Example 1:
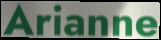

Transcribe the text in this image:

Arianne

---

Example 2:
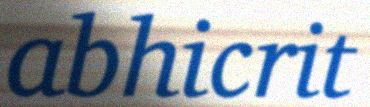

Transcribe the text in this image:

abhicrit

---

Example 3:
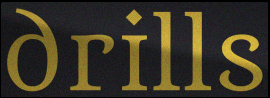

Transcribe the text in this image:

drills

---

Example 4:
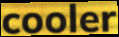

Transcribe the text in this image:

cooler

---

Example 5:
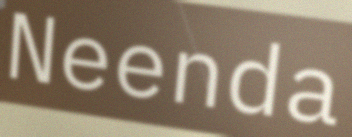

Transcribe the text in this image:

Neenda